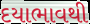
દયાભાવથી